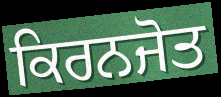
ਕਿਰਨਜੋਤ